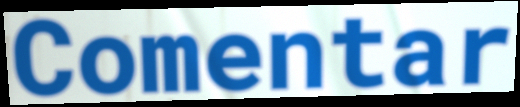
Comentar